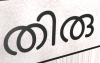
തിരു